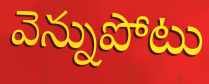
వెన్నుపోటు